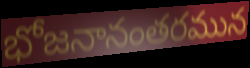
భోజనానంతరమున